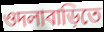
ওদলাবাড়িতে